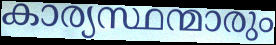
കാര്യസ്ഥന്മാരും